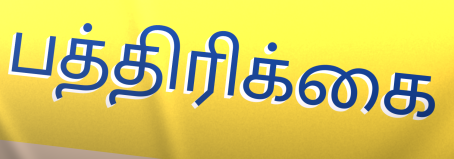
பத்திரிக்கை